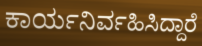
ಕಾರ್ಯನಿರ್ವಹಿಸಿದ್ದಾರೆ